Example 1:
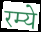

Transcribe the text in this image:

रम्ये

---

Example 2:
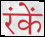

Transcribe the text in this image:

रंकें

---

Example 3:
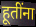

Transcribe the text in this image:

हूतींना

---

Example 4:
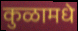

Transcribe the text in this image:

कुळामधे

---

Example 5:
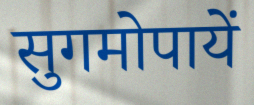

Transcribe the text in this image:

सुगमोपायें